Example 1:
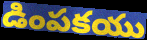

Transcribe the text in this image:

డింపకయు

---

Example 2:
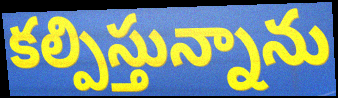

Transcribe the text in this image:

కల్పిస్తున్నాను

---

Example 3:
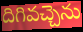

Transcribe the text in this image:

దిగివచ్చెను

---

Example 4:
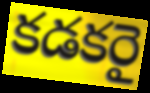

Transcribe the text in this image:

కడకరై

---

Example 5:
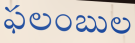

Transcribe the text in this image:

ఫలంబుల